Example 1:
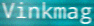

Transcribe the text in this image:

Vinkmag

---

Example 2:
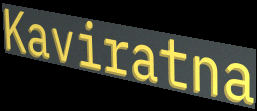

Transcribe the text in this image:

Kaviratna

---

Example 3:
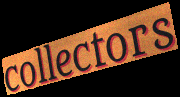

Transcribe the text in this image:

collectors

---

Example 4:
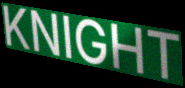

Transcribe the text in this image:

KNIGHT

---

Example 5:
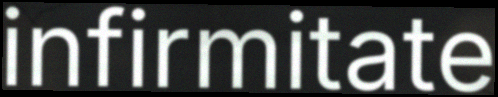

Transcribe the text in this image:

infirmitate